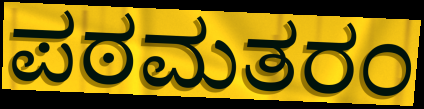
ಪಠಮತರಂ